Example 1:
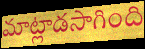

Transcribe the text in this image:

మాట్లాడసాగింది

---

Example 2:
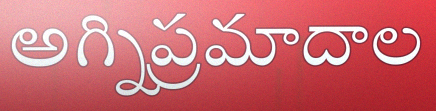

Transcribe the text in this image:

అగ్నిప్రమాదాల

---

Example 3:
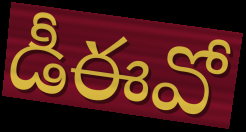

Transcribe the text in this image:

డీఈవో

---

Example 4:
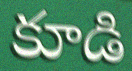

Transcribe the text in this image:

కూడి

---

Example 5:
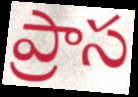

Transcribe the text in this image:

ప్రాస